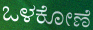
ಒಳಕೋಣೆ